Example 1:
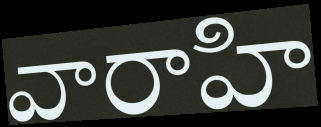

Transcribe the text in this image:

వారాహి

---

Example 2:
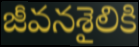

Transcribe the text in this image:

జీవనశైలికి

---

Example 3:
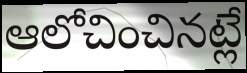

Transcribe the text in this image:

ఆలోచించినట్లే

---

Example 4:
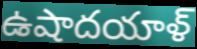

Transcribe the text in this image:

ఉషాదయాళ్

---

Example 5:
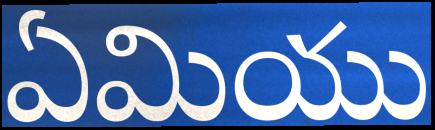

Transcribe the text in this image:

ఏమియు